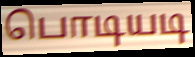
பொடியடி